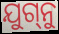
ଯୁଗ୍‌ନୁ